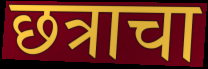
छत्राचा